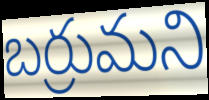
బర్రుమని